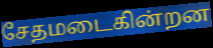
சேதமடைகின்றன